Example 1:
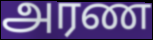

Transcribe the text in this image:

அரண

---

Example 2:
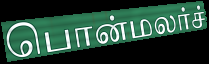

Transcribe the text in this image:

பொன்மலர்ச்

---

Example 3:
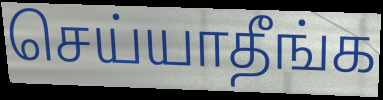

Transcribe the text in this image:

செய்யாதீங்க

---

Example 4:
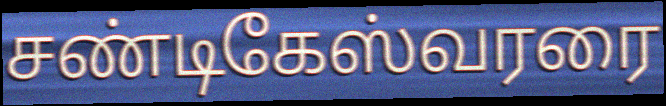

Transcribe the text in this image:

சண்டிகேஸ்வரரை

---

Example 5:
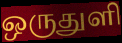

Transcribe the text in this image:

ஒருதுளி